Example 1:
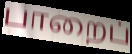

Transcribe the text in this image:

பாறைப்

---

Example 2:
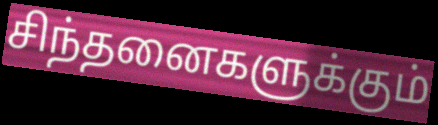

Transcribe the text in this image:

சிந்தனைகளுக்கும்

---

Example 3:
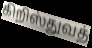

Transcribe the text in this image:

கிறிஸ்துவத்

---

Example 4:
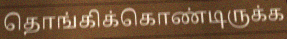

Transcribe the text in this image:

தொங்கிக்கொண்டிருக்க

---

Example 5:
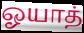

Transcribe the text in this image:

ஓயாத்